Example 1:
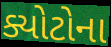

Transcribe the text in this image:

ક્યોટોના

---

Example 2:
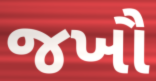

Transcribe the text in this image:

જખૌ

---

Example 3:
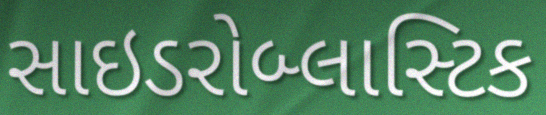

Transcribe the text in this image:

સાઇડરોબ્લાસ્ટિક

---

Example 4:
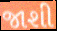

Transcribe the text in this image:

જાશી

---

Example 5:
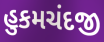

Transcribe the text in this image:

હુકમચંદજી